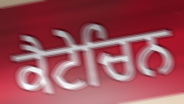
ਕੈਟੇਚਿਨ